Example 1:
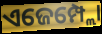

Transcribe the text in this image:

ଏଜେମ୍ପ୍ଲୋ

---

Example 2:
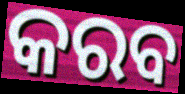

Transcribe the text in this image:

କରବ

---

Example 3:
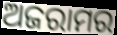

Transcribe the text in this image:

ଅଜରାମର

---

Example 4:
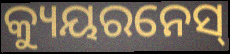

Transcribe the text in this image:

କ୍ୟୁୟରନେସ୍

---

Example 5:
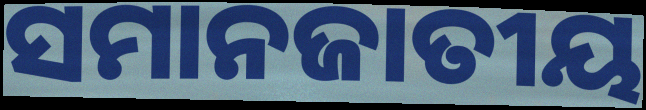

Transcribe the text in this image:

ସମାନଜାତୀୟ